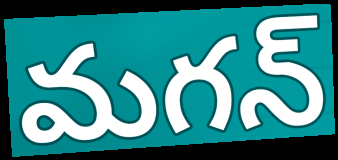
మగన్